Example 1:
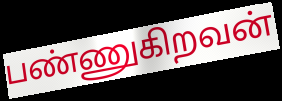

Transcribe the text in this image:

பண்ணுகிறவன்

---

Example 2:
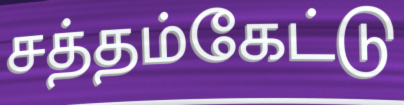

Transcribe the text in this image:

சத்தம்கேட்டு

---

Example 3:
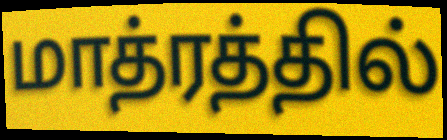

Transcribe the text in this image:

மாத்ரத்தில்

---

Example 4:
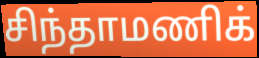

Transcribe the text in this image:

சிந்தாமணிக்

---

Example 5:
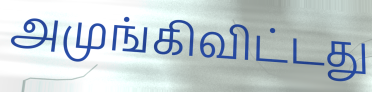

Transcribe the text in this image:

அமுங்கிவிட்டது